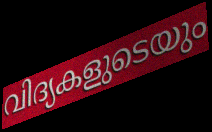
വിദ്യകളുടെയും